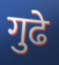
गुढे